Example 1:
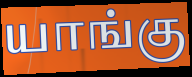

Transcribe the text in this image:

யாங்கு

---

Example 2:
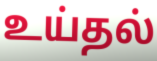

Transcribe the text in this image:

உய்தல்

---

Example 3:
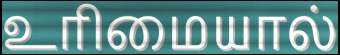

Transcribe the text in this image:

உரிமையால்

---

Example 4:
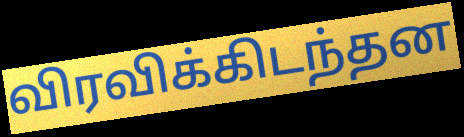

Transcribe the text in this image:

விரவிக்கிடந்தன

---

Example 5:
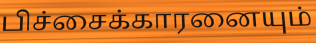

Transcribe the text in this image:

பிச்சைக்காரனையும்